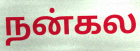
நன்கல